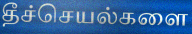
தீச்செயல்களை